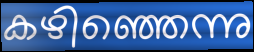
കഴിഞ്ഞെന്നു